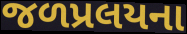
જળપ્રલયના